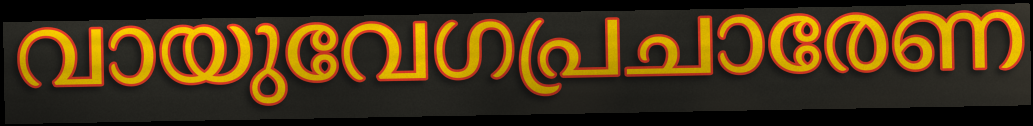
വായുവേഗപ്രചാരേണ